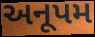
અનૂપમ